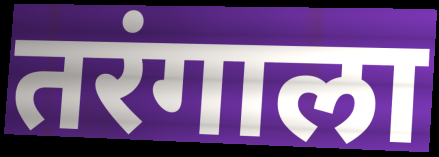
तरंगाला